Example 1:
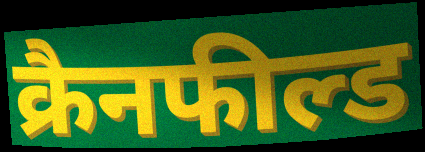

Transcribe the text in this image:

क्रैनफील्ड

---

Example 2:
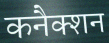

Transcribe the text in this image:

कनैक्शन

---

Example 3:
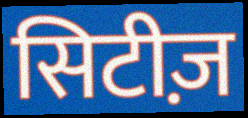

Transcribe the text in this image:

सिटीज़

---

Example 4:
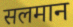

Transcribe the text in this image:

सलमान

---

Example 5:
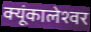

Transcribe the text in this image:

क्यूंकालेश्वर